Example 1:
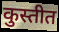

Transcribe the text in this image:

कुस्तीत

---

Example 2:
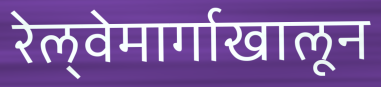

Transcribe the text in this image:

रेल्वेमार्गाखालून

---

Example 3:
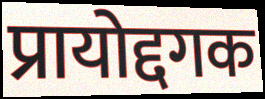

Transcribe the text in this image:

प्रायोद्दगक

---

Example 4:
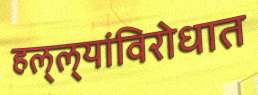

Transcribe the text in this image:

हल्ल्यांविरोधात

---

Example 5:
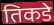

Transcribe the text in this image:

तिकडे